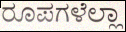
ರೂಪಗಳೆಲ್ಲಾ